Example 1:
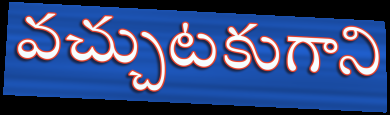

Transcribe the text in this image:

వచ్చుటకుగాని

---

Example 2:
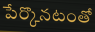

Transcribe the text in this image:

పేర్కొనటంతో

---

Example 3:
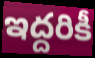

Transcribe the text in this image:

ఇద్దరికీ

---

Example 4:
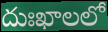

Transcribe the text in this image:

దుఃఖాలలో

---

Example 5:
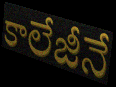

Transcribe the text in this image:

కాలేజీనే